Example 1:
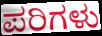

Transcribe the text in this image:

ಪರಿಗಳು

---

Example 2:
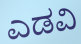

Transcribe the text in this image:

ಎಡವಿ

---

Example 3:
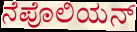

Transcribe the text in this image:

ನೆಪೊಲಿಯನ್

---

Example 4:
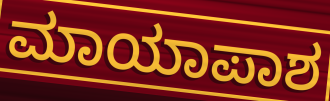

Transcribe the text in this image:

ಮಾಯಾಪಾಶ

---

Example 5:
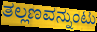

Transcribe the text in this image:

ತಲ್ಲಣವನ್ನುಂಟು